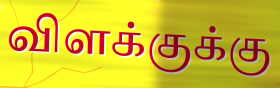
விளக்குக்கு